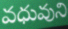
వధువుని